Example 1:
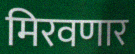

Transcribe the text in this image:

मिरवणार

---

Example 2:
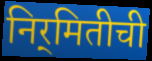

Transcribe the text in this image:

निर्मितीची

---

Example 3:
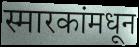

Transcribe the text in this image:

स्मारकांमधून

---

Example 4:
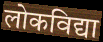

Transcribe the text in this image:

लोकविद्या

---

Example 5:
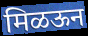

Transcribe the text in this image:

मिळऊन